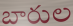
బారుల